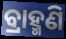
ବ୍ରାହ୍ମଣି